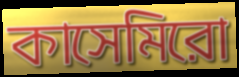
কাসেমিরো